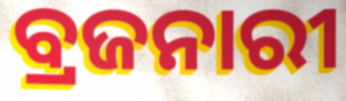
ବ୍ରଜନାରୀ